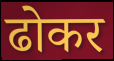
ढोकर